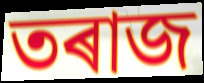
তৰাজ